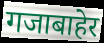
गजाबाहेर